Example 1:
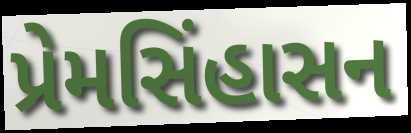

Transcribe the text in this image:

પ્રેમસિંહાસન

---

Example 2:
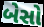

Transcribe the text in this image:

બેસો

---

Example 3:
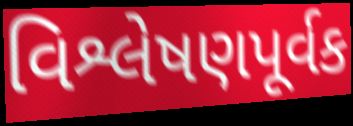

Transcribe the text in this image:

વિશ્લેષણપૂર્વક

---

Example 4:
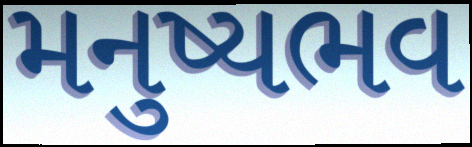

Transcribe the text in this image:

મનુષ્યભવ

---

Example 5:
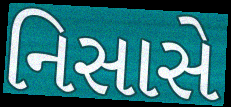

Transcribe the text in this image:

નિસાસે